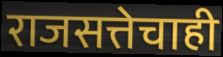
राजसत्तेचाही